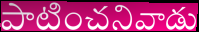
పాటించనివాడు